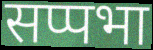
सप्पभा